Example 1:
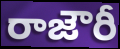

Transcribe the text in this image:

రాజౌరీ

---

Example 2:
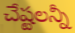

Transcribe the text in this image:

చేష్టలన్నీ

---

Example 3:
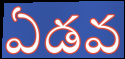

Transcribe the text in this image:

ఏడవ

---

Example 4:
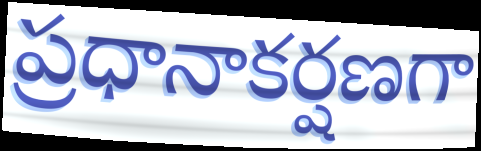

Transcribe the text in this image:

ప్రధానాకర్షణగా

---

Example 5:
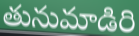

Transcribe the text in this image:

తునుమాడిరి